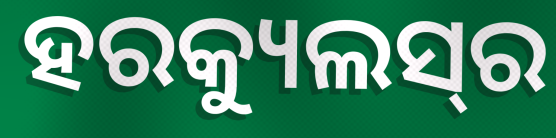
ହରକ୍ୟୁଲସ୍‍ର